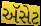
ઍસેટ